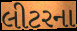
લીટરના